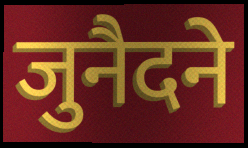
जुनैदने